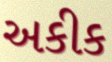
અકીક